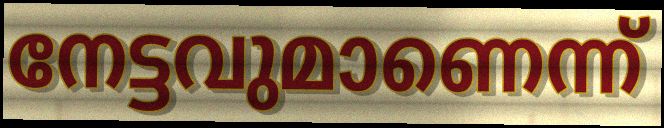
നേട്ടവുമാണെന്ന്